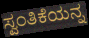
ಸ್ವಂತಿಕೆಯನ್ನ